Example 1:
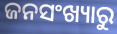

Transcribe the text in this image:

ଜନସଂଖ୍ୟାରୁ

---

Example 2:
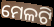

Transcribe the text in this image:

ମେଳଟି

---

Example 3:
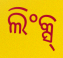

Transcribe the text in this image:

ଲିଂକ୍ସ୍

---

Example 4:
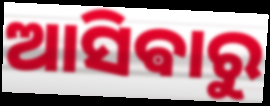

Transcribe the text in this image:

ଆସିଵାରୁ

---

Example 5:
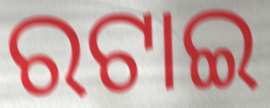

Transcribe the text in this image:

ରଟାଇ